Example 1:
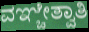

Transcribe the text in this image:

ವಞ್ಚೇತ್ವಾತಿ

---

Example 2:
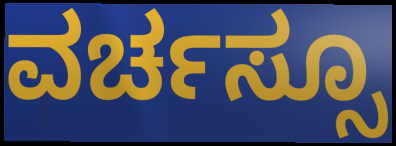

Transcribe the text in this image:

ವರ್ಚಸ್ಸೂ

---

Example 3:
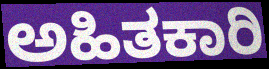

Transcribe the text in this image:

ಅಹಿತಕಾರಿ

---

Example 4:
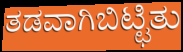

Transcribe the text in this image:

ತಡವಾಗಿಬಿಟ್ಟಿತು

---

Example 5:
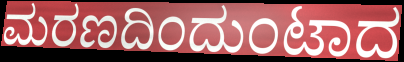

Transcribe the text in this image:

ಮರಣದಿಂದುಂಟಾದ